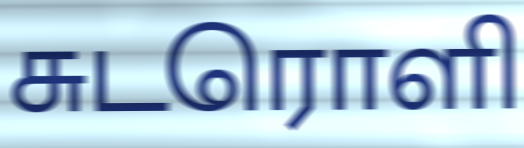
சுடரொளி